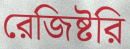
রেজিষ্টরি